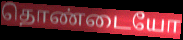
தொண்டையோ